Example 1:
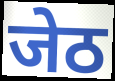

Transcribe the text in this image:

जेठ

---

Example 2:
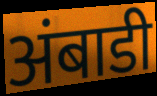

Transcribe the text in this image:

अंबाडी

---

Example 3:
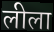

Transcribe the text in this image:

लीला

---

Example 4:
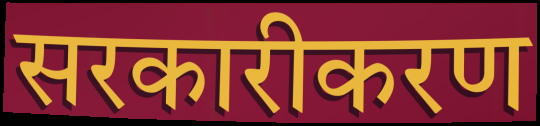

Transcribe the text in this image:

सरकारीकरण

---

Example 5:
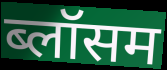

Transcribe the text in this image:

ब्लॉसम